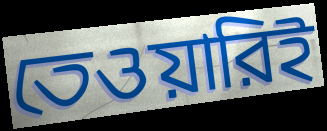
তেওয়ারিই